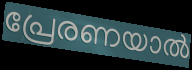
പ്രേരണയാൽ